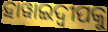
ହାୱାଇଦ୍ଵୀପକୁ